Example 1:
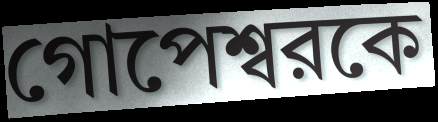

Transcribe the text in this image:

গোপেশ্বরকে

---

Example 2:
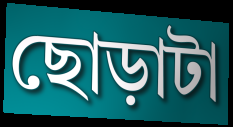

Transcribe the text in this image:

ছোড়াটা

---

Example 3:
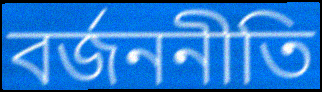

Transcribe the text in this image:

বর্জননীতি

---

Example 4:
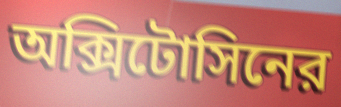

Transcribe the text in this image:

অক্সিটোসিনের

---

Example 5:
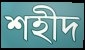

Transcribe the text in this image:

শহীদ